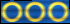
ooo